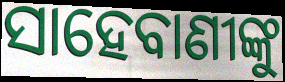
ସାହେବାଣୀଙ୍କୁ